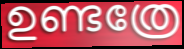
ഉണ്ടത്രേ